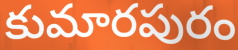
కుమారపురం